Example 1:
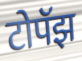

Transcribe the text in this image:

टोपॅझ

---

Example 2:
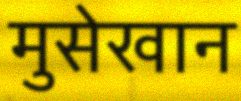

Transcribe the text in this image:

मुसेखान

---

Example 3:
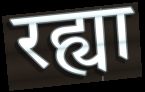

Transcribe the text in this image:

रह्या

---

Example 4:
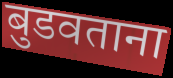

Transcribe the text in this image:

बुडवताना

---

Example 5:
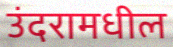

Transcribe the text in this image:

उंदरामधील